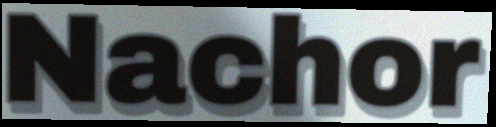
Nachor